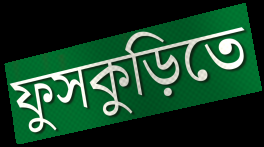
ফুসকুড়িতে